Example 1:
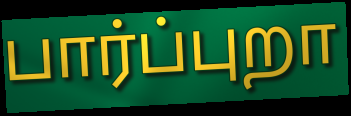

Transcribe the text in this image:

பார்ப்புறா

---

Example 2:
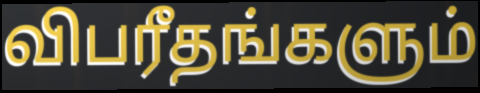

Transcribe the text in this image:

விபரீதங்களும்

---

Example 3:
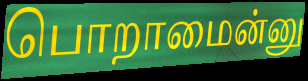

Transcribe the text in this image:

பொறாமைன்னு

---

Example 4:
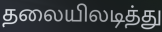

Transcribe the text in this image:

தலையிலடித்து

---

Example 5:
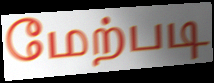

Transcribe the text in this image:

மேற்படி